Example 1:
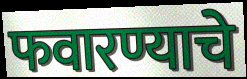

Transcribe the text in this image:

फवारण्याचे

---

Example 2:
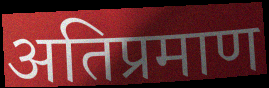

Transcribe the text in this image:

अतिप्रमाण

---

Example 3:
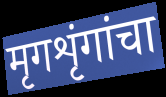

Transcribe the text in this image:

मृगशृंगांचा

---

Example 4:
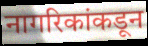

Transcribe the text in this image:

नागरिकांकडून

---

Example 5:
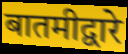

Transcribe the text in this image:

बातमीद्वारे